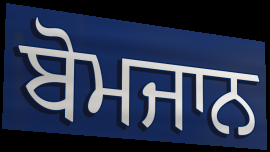
ਬੋਮਜਾਨ